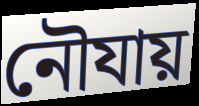
নৌযায়